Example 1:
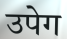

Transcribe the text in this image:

उपेग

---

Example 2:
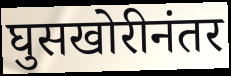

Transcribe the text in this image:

घुसखोरीनंतर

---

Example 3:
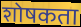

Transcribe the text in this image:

शोषकता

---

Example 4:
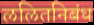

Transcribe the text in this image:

ललितनिबंध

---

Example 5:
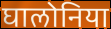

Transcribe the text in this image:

घालोनिया